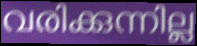
വരിക്കുന്നില്ല